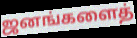
ஜனங்களைத்